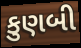
કુણબી